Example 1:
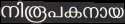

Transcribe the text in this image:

നിരൂപകനായ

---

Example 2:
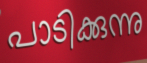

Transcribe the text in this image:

പാടിക്കുന്നു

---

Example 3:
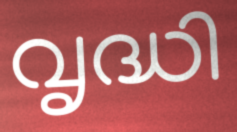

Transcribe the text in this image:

വൃദ്ധി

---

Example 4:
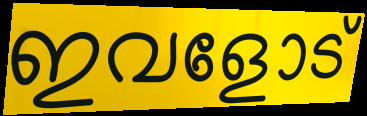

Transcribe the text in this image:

ഇവളോട്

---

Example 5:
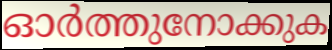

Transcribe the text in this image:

ഓർത്തുനോക്കുക